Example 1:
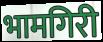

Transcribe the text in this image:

भामगिरी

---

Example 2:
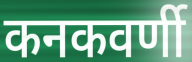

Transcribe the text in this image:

कनकवर्णी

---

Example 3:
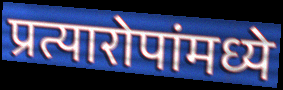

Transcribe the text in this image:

प्रत्यारोपांमध्ये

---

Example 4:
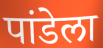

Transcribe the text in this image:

पांडेला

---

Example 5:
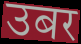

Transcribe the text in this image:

उबर